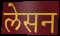
लेसन